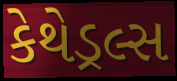
કેથેડ્રલ્સ